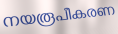
നയരൂപീകരണ